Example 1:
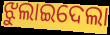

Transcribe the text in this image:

ଝୁଲାଇଦେଲା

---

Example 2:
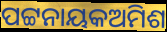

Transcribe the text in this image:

ପଟ୍ଟନାୟକଅମିଶ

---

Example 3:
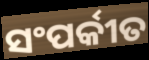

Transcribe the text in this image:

ସଂପର୍କୀତ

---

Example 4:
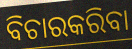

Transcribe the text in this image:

ବିଚାରକରିବା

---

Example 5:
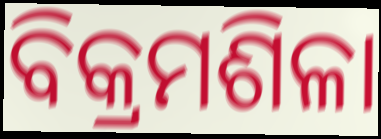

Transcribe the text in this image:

ବିକ୍ରମଶିଳା